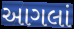
આગલાં